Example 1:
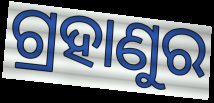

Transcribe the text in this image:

ଗ୍ରହାଣୁର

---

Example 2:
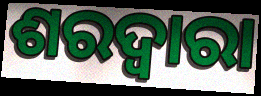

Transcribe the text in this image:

ଶରଦ୍ୱାରା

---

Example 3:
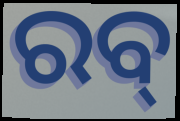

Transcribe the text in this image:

ରବ୍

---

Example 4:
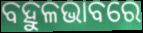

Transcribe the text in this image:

ବହୁଳଭାବରେ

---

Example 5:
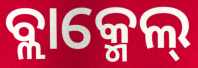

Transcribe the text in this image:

ବ୍ଲାକ୍ମେଲ୍